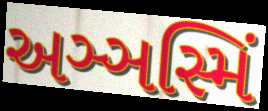
અઞ્ઞસ્મિં